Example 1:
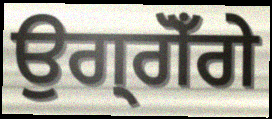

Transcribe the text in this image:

ਉਗ੍ਗੋਁਗੇ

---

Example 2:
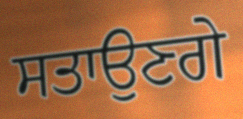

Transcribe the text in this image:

ਸਤਾਉਣਗੇ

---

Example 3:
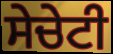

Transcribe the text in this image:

ਸੇਚੇਟੀ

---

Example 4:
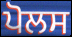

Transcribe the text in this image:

ਪੋਲਸ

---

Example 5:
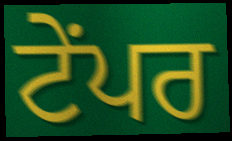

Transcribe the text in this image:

ਟੇਂਪਰ